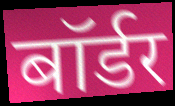
बॉर्डर